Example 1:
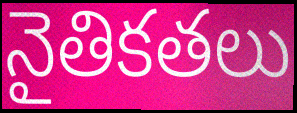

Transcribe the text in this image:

నైతికతలు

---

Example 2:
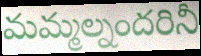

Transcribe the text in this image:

మమ్మల్నందరినీ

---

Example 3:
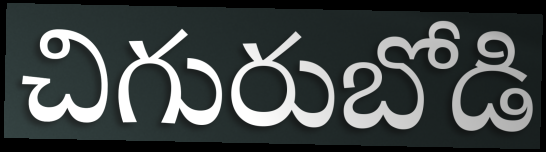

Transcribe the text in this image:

చిగురుబోడి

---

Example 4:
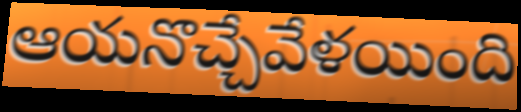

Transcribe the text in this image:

ఆయనొచ్చేవేళయింది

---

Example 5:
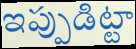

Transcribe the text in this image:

ఇప్పుడిట్టా